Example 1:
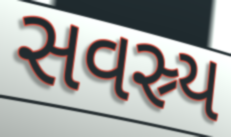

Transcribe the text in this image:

સવસ્ર્ય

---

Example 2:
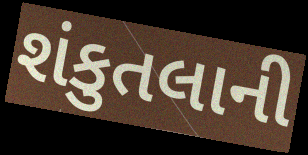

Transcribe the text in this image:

શંકુતલાની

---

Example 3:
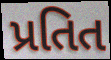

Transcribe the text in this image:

પ્રતિત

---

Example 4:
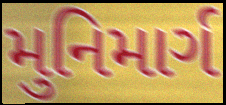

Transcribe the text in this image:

મુનિમાર્ગ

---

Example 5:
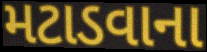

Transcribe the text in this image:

મટાડવાના